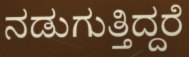
ನಡುಗುತ್ತಿದ್ದರೆ